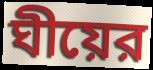
ঘীয়ের